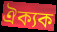
ঐক্যক